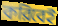
করিবেই